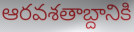
ఆరవశతాబ్దానికి